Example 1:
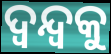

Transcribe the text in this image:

ଦ୍ଵନ୍ଦ୍ଵକୁ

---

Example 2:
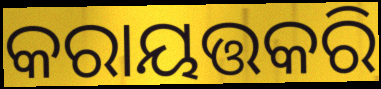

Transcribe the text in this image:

କରାୟତ୍ତକରି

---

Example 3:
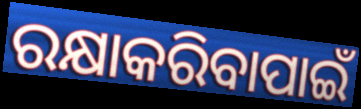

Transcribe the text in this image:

ରକ୍ଷାକରିବାପାଇଁ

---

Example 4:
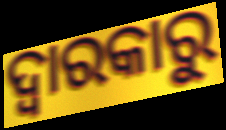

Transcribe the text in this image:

ଦ୍ଵାରକାରୁ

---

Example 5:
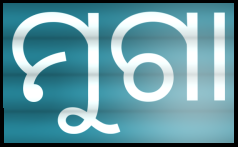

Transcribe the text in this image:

ମୁଗା